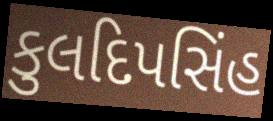
કુલદિપસિંહ